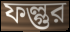
ফল্গুর